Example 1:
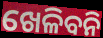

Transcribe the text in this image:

ଖେଳିବନି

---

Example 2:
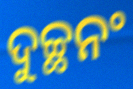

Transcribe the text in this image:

ଦୁଚ୍ଛନଂ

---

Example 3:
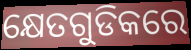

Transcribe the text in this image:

କ୍ଷେତଗୁଡିକରେ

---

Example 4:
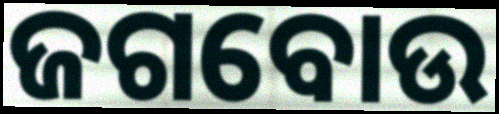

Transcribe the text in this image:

ଜଗବୋଉ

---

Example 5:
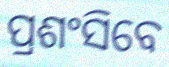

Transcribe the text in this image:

ପ୍ରଶଂସିବେ